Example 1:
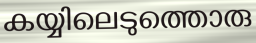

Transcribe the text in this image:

കയ്യിലെടുത്തൊരു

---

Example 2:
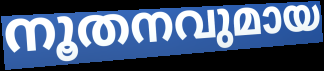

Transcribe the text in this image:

നൂതനവുമായ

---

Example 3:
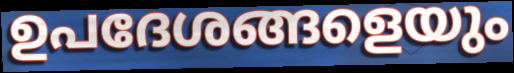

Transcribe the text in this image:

ഉപദേശങ്ങളെയും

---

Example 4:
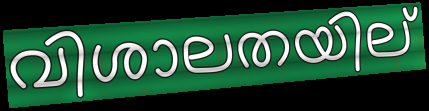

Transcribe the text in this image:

വിശാലതയില്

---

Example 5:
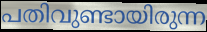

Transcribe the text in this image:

പതിവുണ്ടായിരുന്ന